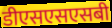
डीएसएसएसबी